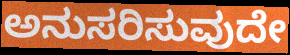
ಅನುಸರಿಸುವುದೇ